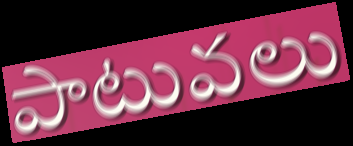
పాటువలు